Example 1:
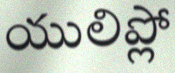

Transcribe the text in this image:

యులిప్లో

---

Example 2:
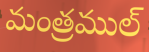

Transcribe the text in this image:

మంత్రముల్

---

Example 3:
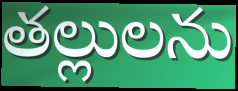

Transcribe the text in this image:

తల్లులను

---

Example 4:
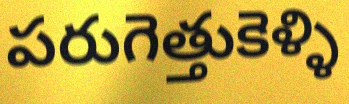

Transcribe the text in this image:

పరుగెత్తుకెళ్ళి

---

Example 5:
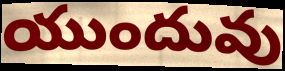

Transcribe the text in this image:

యుందువు